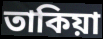
তাকিয়া